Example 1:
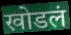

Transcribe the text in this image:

खोडलं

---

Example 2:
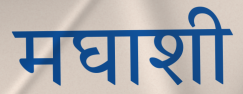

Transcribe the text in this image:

मघाशी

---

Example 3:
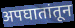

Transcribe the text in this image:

अपघातांतून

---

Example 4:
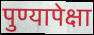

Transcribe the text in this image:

पुण्यापेक्षा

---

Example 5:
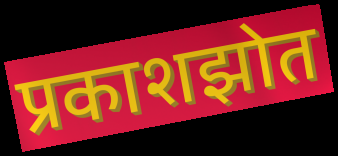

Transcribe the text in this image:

प्रकाशझोत